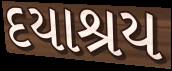
દયાશ્રય